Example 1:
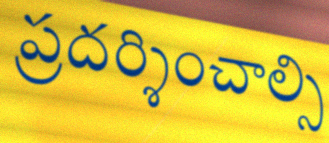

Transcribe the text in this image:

ప్రదర్శించాల్సి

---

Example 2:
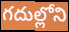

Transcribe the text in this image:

గదుల్లోని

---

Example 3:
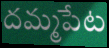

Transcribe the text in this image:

దమ్మపేట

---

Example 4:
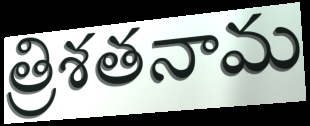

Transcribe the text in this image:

త్రిశతనామ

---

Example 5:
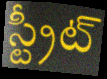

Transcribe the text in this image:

స్ట్రీట్